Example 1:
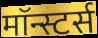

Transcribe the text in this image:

मॉन्स्टर्स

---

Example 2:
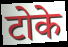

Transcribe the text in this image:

टोके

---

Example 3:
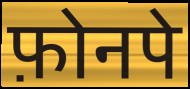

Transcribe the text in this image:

फ़ोनपे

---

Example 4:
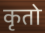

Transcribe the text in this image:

कृतो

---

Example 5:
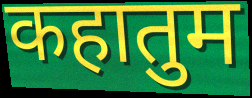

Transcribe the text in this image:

कहातुम